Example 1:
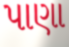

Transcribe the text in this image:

પાણા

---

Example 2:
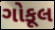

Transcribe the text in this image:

ગોકૂલ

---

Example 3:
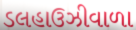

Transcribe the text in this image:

ડલહાઉઝીવાળા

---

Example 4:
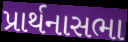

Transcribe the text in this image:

પ્રાર્થનાસભા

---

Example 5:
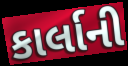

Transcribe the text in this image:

કાર્લાની